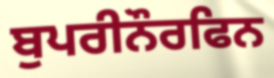
ਬੁਪਰੀਨੌਰਫਿਨ